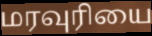
மரவுரியை